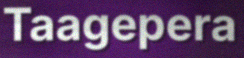
Taagepera